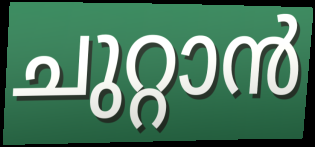
ചുറ്റാൻ